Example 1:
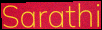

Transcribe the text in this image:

Sarathi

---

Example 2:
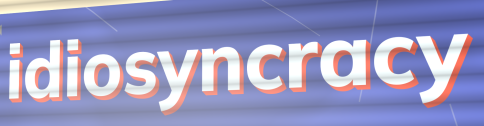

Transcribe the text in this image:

idiosyncracy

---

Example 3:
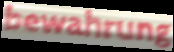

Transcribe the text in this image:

bewahrung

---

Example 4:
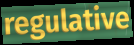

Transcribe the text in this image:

regulative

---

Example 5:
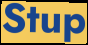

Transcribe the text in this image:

Stup